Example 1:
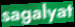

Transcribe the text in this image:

sagalyat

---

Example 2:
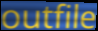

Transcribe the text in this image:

outfile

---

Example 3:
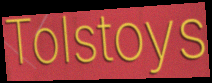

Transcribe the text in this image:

Tolstoys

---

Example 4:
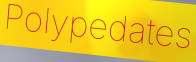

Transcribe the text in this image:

Polypedates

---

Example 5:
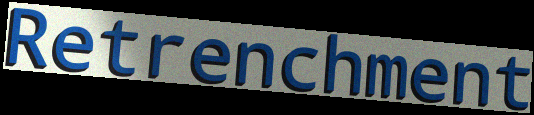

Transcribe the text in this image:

Retrenchment